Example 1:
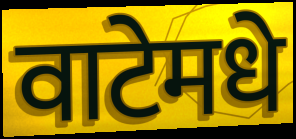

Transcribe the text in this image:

वाटेमधे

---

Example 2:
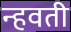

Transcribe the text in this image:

न्हवती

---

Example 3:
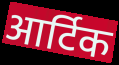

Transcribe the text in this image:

आर्टिक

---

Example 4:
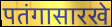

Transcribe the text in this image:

पतंगासारखे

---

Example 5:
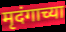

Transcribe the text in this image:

मृदंगाच्या